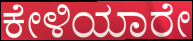
ಕೇಳಿಯಾರೇ